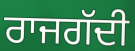
ਰਾਜਗੱਦੀ